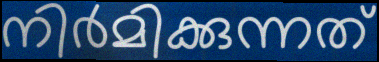
നിർമിക്കുന്നത്